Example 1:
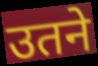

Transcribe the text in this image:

उतने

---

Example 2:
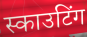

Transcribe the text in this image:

स्काउटिंग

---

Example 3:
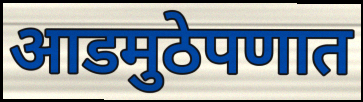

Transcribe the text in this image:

आडमुठेपणात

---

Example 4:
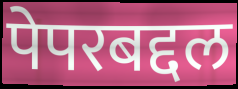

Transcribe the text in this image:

पेपरबद्दल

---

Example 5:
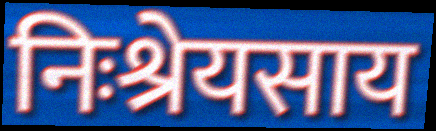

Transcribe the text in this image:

निःश्रेयसाय